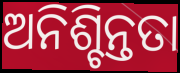
ଅନିଶ୍ଚିନ୍ତତା